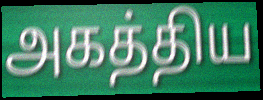
அகத்திய